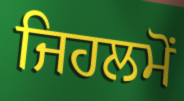
ਜਿਹਲਮੋਂ